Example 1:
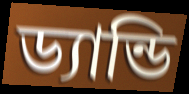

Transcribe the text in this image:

ড্যান্ডি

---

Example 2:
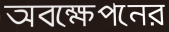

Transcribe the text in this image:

অবক্ষেপনের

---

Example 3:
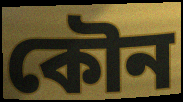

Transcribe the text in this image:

কৌন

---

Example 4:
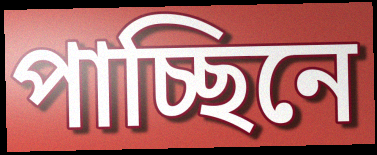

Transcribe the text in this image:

পাচ্ছিনে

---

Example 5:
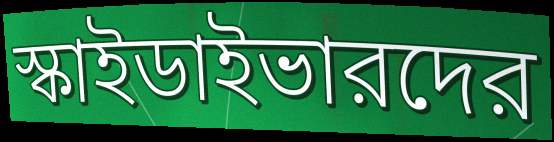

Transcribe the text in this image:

স্কাইডাইভারদের